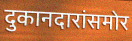
दुकानदारांसमोर